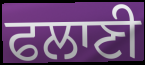
ਫਲਾਣੀ